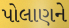
પોલાણને